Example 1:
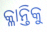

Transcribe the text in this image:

କ୍ଳାନ୍ତିକୁ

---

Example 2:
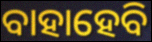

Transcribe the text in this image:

ବାହାହେବି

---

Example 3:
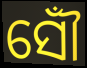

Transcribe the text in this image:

ସୌଁ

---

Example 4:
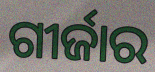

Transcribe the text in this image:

ଗୀର୍ଜାର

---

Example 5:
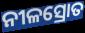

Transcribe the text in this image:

ନୀଳସ୍ରୋତ